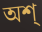
অশ্